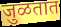
जुळतात